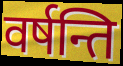
वर्षन्ति